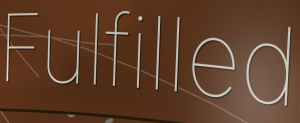
Fulfilled